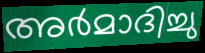
അർമാദിച്ചു